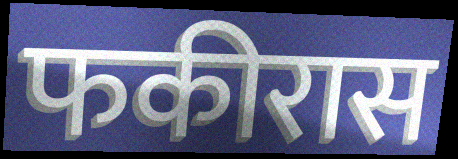
फकीरास